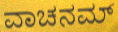
ವಾಚನಮ್